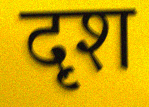
दृश